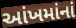
આંખમાંનાં